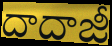
దాదాజీ